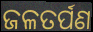
ଜଳତର୍ପଣ